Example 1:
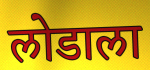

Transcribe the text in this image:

लोडाला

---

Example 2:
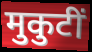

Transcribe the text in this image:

मुकुटीं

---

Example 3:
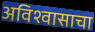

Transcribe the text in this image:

अविश्वासाचा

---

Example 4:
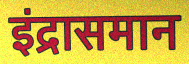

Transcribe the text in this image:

इंद्रासमान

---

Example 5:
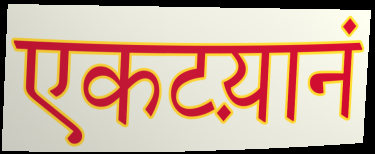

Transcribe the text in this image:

एकटय़ानं